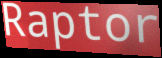
Raptor